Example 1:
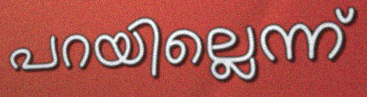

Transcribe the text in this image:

പറയില്ലെന്ന്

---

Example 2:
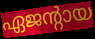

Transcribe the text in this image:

ഏജന്റായ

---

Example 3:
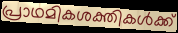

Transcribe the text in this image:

പ്രാഥമികശക്തികൾക്ക്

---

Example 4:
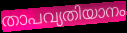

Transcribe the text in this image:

താപവ്യതിയാനം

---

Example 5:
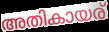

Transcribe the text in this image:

അതികായര്